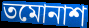
তমোনাশ